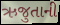
ઋજુતાની